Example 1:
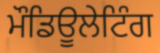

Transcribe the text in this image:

ਮੌਡਿਊਲੇਟਿੰਗ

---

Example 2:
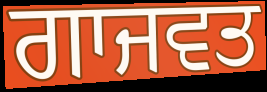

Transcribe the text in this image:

ਗਾਜਵਤ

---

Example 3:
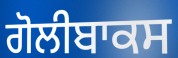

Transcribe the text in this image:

ਗੋਲੀਬਾਕਸ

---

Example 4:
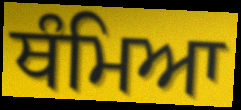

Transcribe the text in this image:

ਥੰਮਿਆ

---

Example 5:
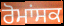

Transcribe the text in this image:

ਰੋਮਾਂਸਕ